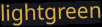
lightgreen